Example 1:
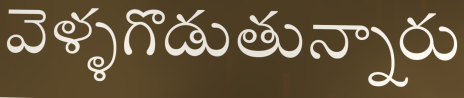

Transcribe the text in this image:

వెళ్ళగొడుతున్నారు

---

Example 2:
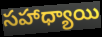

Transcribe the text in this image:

సహాధ్యాయి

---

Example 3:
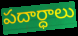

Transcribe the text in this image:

పదార్ధాలు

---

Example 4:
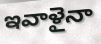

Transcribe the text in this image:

ఇవాళైనా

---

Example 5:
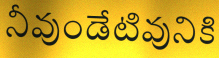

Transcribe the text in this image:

నీవుండేటివునికి